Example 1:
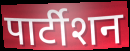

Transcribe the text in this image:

पार्टीशन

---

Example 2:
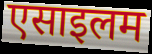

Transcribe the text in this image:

एसाइलम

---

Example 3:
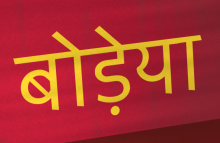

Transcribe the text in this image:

बोड़ेया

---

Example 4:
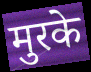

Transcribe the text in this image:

मुरके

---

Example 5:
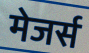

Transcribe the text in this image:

मेजर्स